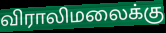
விராலிமலைக்கு